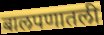
बालपणातली